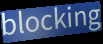
blocking